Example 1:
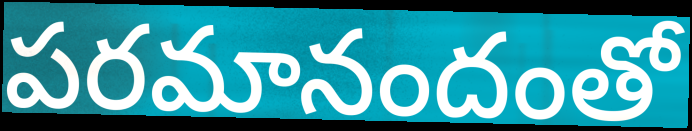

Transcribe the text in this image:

పరమానందంతో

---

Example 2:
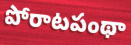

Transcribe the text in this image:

పోరాటపంథా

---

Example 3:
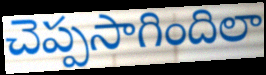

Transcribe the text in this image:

చెప్పసాగిందిలా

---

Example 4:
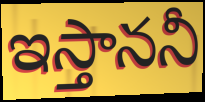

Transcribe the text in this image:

ఇస్తాననీ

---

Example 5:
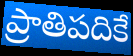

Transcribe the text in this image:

ప్రాతిపదికే